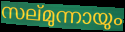
സല്മുന്നായും